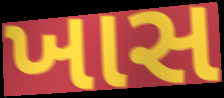
ખાસ